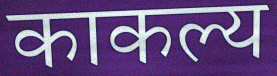
काकल्य